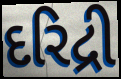
દરિદ્રી